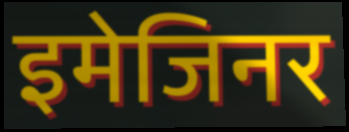
इमेजिनर